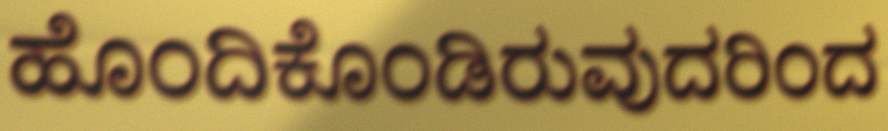
ಹೊಂದಿಕೊಂಡಿರುವುದರಿಂದ